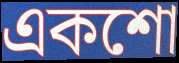
একশো